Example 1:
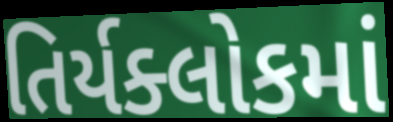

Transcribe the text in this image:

તિર્યક્લોકમાં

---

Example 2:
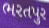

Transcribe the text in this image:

ભરતપુર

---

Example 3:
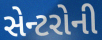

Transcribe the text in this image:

સેન્ટરોની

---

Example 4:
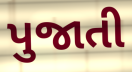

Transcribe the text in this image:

પુજાતી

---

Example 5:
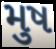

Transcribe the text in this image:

મુષ